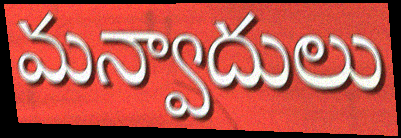
మన్వాదులు